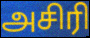
அசிரி